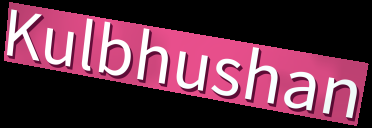
Kulbhushan